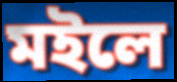
মইলে